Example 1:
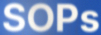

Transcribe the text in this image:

SOPs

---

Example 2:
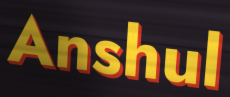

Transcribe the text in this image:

Anshul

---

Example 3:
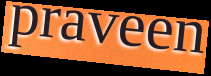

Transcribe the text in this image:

praveen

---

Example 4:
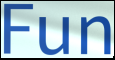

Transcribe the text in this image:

Fun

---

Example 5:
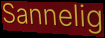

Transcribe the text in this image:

Sannelig